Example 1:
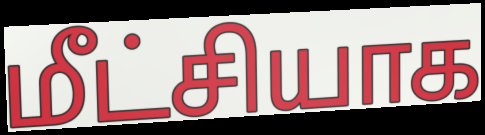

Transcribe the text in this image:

மீட்சியாக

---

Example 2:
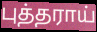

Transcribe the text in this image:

புத்தராய்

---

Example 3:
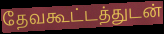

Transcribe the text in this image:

தேவகூட்டத்துடன்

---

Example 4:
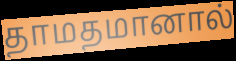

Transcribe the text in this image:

தாமதமானால்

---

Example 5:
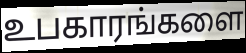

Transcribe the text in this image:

உபகாரங்களை